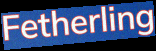
Fetherling